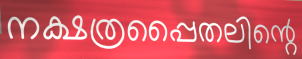
നക്ഷത്രപ്പൈതലിന്റെ